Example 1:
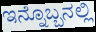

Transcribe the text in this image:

ಇನ್ನೊಬ್ಬನಲ್ಲಿ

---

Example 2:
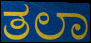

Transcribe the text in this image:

ತಲಾ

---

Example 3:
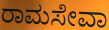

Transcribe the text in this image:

ರಾಮಸೇವಾ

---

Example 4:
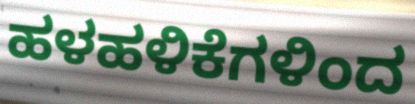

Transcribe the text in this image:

ಹಳಹಳಿಕೆಗಳಿಂದ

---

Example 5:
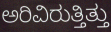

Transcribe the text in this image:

ಅರಿವಿರುತ್ತಿತ್ತು